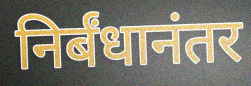
निर्बंधानंतर